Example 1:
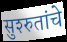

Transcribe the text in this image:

सुश्रुतांचे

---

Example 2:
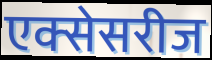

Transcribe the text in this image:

एक्सेसरीज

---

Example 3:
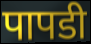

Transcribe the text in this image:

पापडी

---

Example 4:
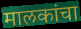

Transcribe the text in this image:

मालकांचा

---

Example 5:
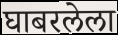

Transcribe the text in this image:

घाबरलेला